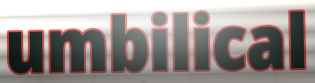
umbilical